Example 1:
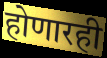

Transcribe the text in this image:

होणारही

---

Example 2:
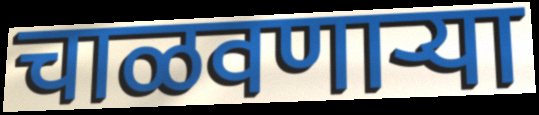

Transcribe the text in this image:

चाळवणाऱ्या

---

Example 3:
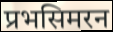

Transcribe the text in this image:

प्रभसिमरन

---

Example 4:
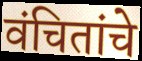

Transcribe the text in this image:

वंचितांचे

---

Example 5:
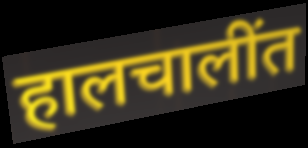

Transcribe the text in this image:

हालचालींत